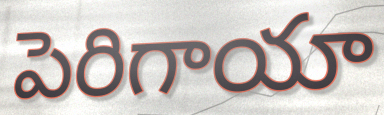
పెరిగాయా